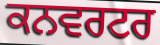
ਕਨਵਰਟਰ